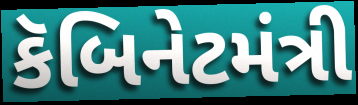
કૅબિનેટમંત્રી